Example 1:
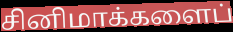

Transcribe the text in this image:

சினிமாக்களைப்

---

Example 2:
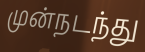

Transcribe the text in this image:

முன்நடந்து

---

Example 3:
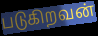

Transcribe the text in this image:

படுகிறவன்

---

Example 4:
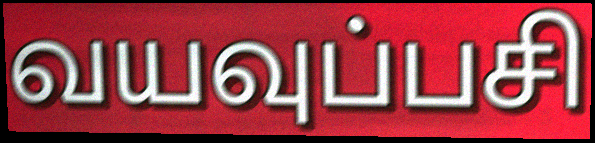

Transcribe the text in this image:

வயவுப்பசி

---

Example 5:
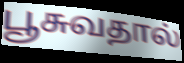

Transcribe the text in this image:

பூசுவதால்